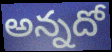
అన్నదో